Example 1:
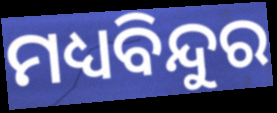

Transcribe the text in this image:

ମଧ୍ୟବିନ୍ଦୁର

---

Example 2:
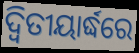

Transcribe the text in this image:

ଦ୍ୱିତୀୟାର୍ଦ୍ଧରେ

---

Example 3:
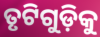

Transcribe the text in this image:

ତୃଟିଗୁଡ଼ିକୁ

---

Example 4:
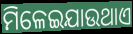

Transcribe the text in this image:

ମିଳେଇଯାଉଥାଏ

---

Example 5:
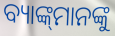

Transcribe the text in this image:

ବ୍ୟାଙ୍କ୍‌ମାନଙ୍କୁ